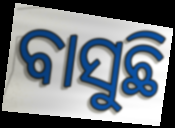
ବାସୁଛି